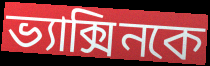
ভ্যাক্সিনকে